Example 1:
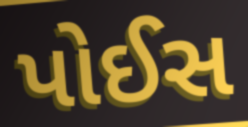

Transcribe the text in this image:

પોઈસ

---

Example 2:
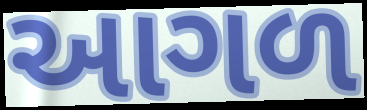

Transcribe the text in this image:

આગળ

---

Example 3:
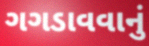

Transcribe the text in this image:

ગગડાવવાનું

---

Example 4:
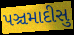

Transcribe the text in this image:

પઞ્ચમાદીસુ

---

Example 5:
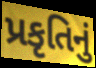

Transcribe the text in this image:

પ્રકૃતિનું